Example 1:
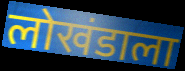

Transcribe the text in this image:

लोखंडाला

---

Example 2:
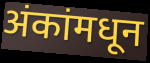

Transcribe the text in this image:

अंकांमधून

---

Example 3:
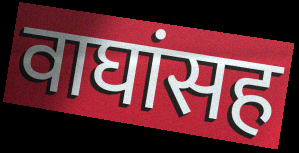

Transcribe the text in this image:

वाघांसह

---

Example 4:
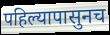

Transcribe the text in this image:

पहिल्यापासुनच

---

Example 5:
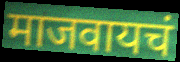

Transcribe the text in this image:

माजवायचं